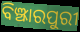
ବିଞ୍ଝାରପୁରୀ